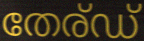
തേര്ഡ്